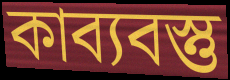
কাব্যবস্তু